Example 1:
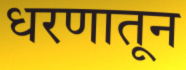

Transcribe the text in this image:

धरणातून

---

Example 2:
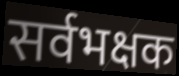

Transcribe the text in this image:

सर्वभक्षक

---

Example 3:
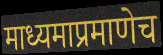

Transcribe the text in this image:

माध्यमाप्रमाणेच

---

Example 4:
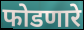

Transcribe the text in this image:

फोडणारे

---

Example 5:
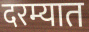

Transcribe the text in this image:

दरम्यात